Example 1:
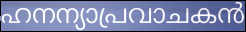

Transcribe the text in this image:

ഹനന്യാപ്രവാചകൻ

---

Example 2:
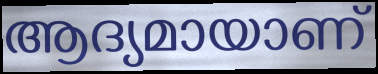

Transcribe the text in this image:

ആദ്യമായാണ്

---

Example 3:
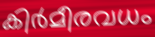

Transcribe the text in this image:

കിർമീരവധം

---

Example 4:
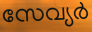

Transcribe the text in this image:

സേവ്യർ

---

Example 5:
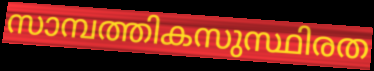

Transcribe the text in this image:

സാമ്പത്തികസുസ്ഥിരത